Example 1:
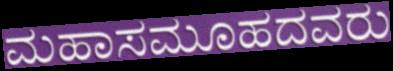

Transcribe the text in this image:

ಮಹಾಸಮೂಹದವರು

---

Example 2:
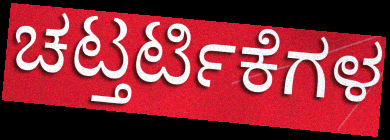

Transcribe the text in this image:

ಚಟ್ತರ್ಟಿಕೆಗಳ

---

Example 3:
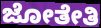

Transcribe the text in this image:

ಜೋತೇತಿ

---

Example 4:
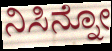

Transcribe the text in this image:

ನಿಸಿನ್ನೋ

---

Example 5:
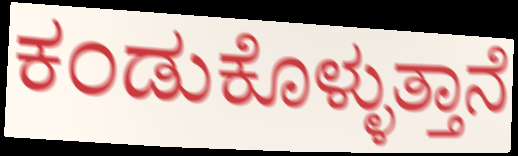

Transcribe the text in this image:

ಕಂಡುಕೊಳ್ಳುತ್ತಾನೆ